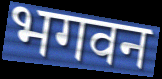
भगवन